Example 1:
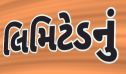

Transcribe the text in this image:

લિમિટેડનું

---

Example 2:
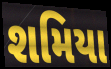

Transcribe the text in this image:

શમિયા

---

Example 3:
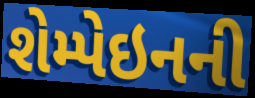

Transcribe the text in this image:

શેમ્પેઇનની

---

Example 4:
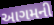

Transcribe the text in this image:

આગમની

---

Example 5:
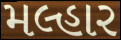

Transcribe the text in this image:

મલ્હાર